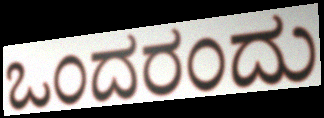
ಒಂದರಂದು